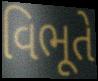
વિભૂતે